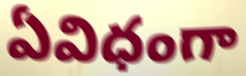
ఏవిధంగా